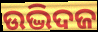
ଉଦ୍ଭିଦଜ